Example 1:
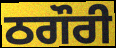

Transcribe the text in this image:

ਠਗੌਰੀ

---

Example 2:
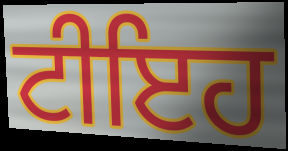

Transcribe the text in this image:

ਟੀਇਹ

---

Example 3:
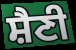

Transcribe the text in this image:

ਸ਼ੈਣੀ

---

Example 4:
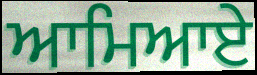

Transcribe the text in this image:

ਆਮਿਆਏ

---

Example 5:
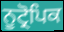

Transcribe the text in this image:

ਨੂਟ੍ਰੋਪਿਕ